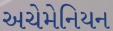
અચેમેનિયન